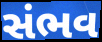
સંભવ